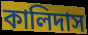
কালিদাস